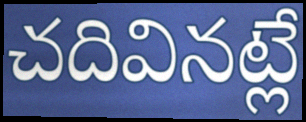
చదివినట్లే